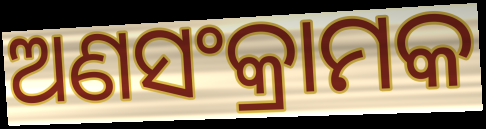
ଅଣସଂକ୍ରାମକ